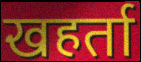
खहर्ता